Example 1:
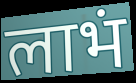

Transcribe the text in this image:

लाभं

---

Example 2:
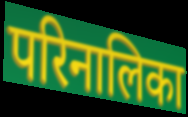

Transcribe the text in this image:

परिनालिका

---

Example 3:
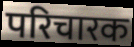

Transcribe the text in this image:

परिचारक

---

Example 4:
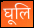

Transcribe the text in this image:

घूलि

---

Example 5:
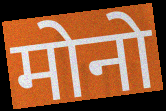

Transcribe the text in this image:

मोनो